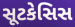
સૂટકેસિસ